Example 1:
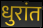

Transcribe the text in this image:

धुरांत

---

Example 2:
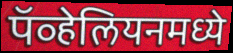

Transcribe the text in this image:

पॅव्हेलियनमध्ये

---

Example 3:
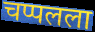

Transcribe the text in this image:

चप्पलला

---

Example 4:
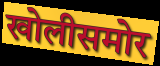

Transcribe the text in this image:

खोलीसमोर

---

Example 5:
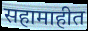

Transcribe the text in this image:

सहामाहीत